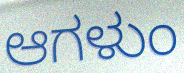
ಆಗಳುಂ